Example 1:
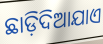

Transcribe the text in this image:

ଛାଡ଼ିଦିଆଯାଏ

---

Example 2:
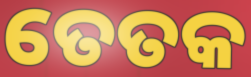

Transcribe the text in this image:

ତେତକ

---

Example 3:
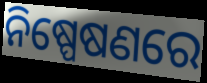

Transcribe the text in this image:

ନିଷ୍ପେଷଣରେ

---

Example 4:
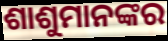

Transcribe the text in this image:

ଶାଶୁମାନଙ୍କର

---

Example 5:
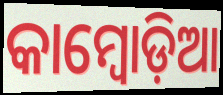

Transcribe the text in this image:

କାମ୍ବୋଡ଼ିଆ